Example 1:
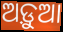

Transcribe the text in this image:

ଅଡ଼ୁଆ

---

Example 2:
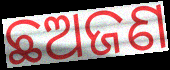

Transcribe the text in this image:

ଛଅଜଣ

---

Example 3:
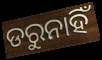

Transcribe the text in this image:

ଡରୁନାହିଁ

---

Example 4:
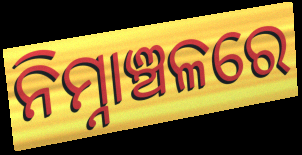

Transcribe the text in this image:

ନିମ୍ନାଞ୍ଚଳରେ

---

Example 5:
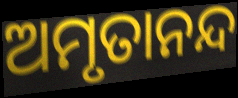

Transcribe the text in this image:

ଅମୃତାନନ୍ଦ